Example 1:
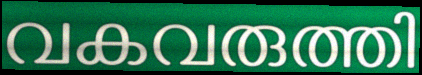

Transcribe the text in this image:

വകവരുത്തി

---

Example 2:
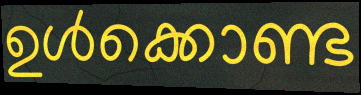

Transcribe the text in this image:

ഉൾക്കൊണ്ട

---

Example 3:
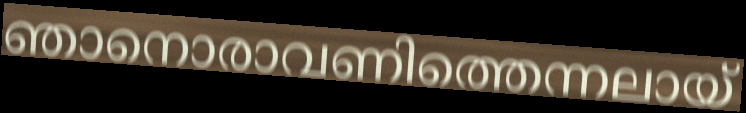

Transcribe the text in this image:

ഞാനൊരാവണിത്തെന്നലായ്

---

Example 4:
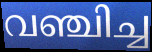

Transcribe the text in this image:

വഞ്ചിച്ച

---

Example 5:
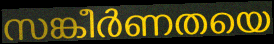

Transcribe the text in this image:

സങ്കീർണതയെ